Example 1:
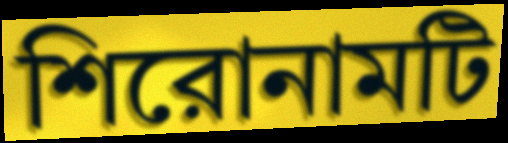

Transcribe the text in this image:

শিরোনামটি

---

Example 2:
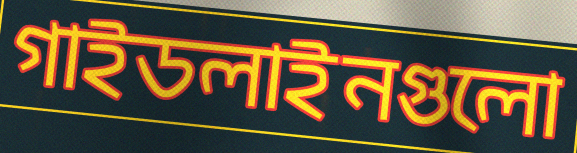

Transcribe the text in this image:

গাইডলাইনগুলো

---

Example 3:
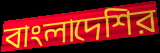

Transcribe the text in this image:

বাংলাদেশির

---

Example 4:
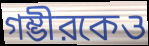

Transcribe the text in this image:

গম্ভীরকেও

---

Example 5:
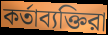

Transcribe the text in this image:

কর্তাব্যক্তিরা